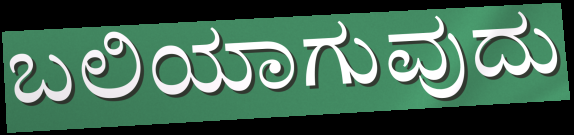
ಬಲಿಯಾಗುವುದು